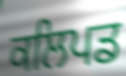
ਕਲਿਪਡ